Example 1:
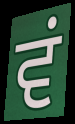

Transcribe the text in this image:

ਵਂ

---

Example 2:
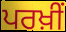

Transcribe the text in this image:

ਪਰਖ਼ੀਂ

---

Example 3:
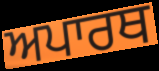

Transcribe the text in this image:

ਅਪਾਰਥ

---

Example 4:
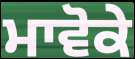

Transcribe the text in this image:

ਮਾਵੋਕੇ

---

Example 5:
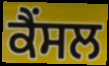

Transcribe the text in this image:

ਕੈਂਸਲ